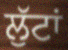
ਲੁੱਟਾਂ